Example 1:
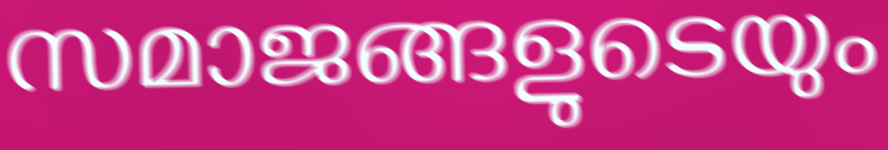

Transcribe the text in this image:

സമാജങ്ങളുടെയും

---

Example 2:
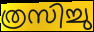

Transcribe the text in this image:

ത്രസിച്ചു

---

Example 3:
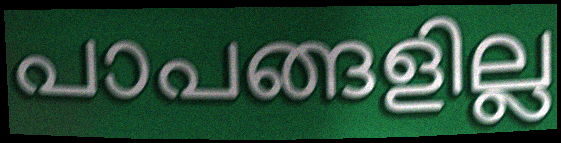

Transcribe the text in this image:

പാപങ്ങളില്ല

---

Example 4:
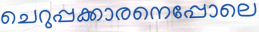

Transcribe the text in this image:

ചെറുപ്പക്കാരനെപ്പോലെ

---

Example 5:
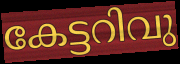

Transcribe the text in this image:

കേട്ടറിവു